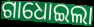
ଗାଧୋଇଲା